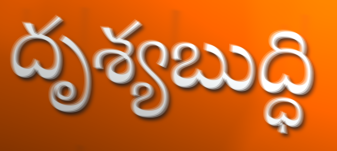
దృశ్యబుద్ధి